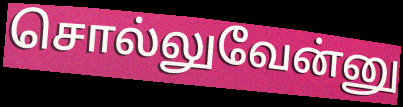
சொல்லுவேன்னு